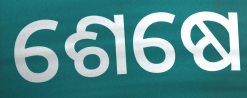
ଶେଷେ